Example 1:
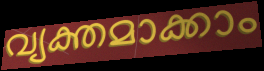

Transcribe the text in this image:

വ്യക്തമാക്കാം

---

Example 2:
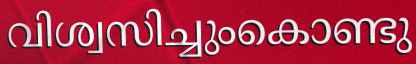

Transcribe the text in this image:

വിശ്വസിച്ചുംകൊണ്ടു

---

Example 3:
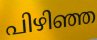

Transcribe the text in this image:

പിഴിഞ്ഞ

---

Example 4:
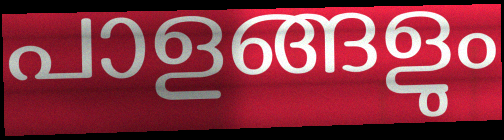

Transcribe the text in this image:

പാളങ്ങളും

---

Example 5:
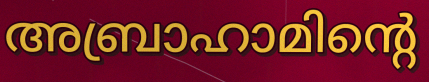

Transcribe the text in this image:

അബ്രാഹാമിന്റെ